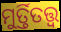
ମୁର୍ତ୍ତିତତ୍ତ୍ବ